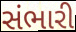
સંભારી